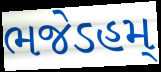
ભજેઽહમ્